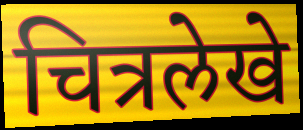
चित्रलेखे